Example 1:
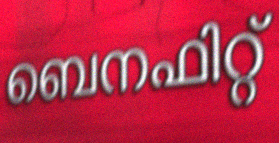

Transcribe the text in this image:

ബെനഫിറ്റ്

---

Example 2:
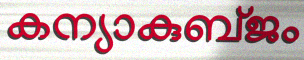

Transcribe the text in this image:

കന്യാകുബ്ജം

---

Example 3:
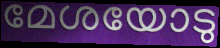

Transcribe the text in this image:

മേശയോടു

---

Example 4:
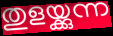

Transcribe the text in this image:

തുളയ്ക്കുന്ന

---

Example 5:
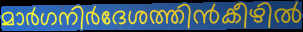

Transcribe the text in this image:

മാർഗനിർദേശത്തിൻകീഴിൽ